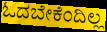
ಓದಬೇಕೆಂದಿಲ್ಲ